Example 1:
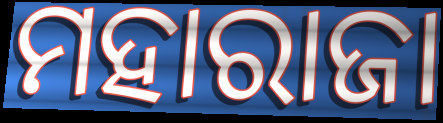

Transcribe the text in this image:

ମହାରାଜା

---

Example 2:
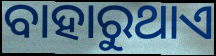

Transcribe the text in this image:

ବାହାରୁଥାଏ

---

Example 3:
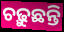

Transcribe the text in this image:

ଚଢ଼ୁଛନ୍ତି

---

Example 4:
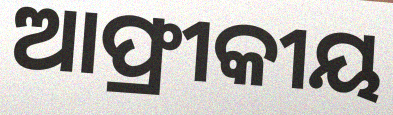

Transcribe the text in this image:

ଆଫ୍ରୀକୀୟ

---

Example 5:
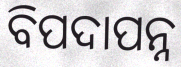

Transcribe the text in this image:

ବିପଦାପନ୍ନ